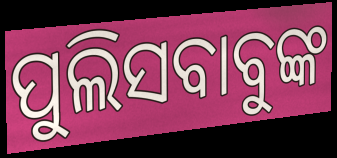
ପୁଲିସବାବୁଙ୍କ